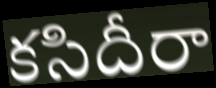
కసిదీరా